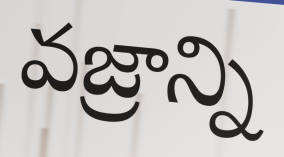
వజ్రాన్ని